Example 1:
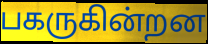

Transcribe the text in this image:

பகருகின்றன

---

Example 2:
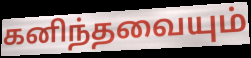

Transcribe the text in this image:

கனிந்தவையும்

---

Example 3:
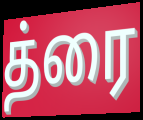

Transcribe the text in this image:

த்ரை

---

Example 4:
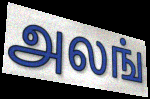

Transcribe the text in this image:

அலங்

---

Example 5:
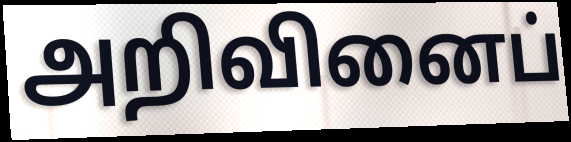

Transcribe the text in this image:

அறிவினைப்